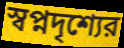
স্বপ্নদৃশ্যের